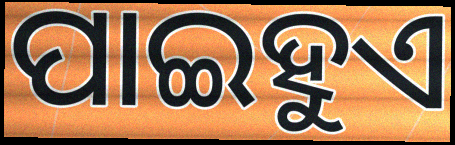
ପାଇହୁଏ